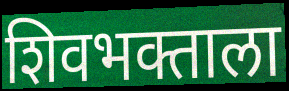
शिवभक्ताला